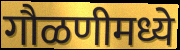
गौळणीमध्ये